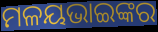
ମଳୟଭାଇଙ୍କର